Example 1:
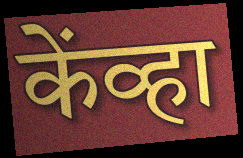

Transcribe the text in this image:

केंव्हा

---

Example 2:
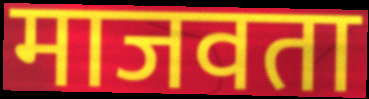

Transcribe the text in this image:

माजवता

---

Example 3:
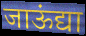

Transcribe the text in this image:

जाऊंद्या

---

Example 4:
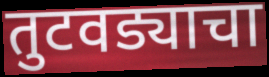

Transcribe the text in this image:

तुटवड्याचा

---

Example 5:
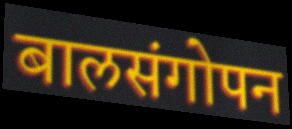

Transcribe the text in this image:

बालसंगोपन